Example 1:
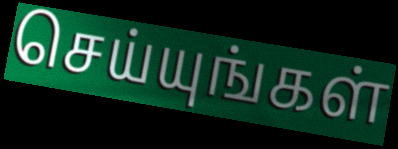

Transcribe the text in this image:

செய்யுங்கள்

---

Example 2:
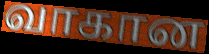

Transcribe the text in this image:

வாகான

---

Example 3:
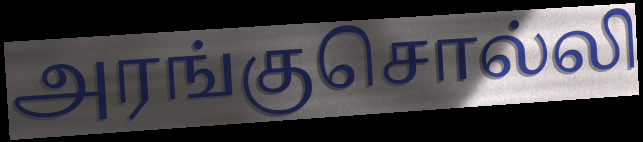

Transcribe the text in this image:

அரங்குசொல்லி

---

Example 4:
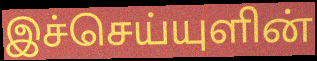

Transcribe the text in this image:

இச்செய்யுளின்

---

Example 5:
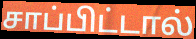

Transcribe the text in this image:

சாப்பிட்டால்